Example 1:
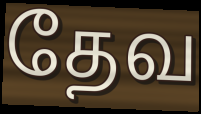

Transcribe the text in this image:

தேவ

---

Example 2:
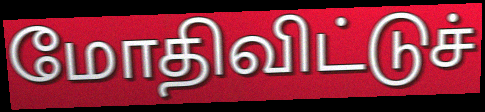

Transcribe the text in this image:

மோதிவிட்டுச்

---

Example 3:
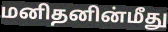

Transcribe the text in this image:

மனிதனின்மீது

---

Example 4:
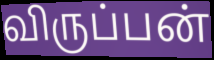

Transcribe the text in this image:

விருப்பன்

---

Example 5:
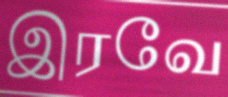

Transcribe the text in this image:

இரவே